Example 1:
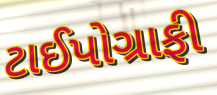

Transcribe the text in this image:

ટાઈપોગ્રાફી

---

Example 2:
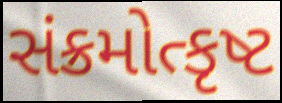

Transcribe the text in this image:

સંક્રમોત્કૃષ્ટ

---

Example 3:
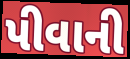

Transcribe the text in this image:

પીવાની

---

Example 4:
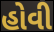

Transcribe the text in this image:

હોવી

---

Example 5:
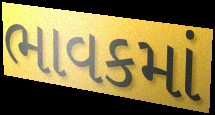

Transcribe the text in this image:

ભાવકમાં